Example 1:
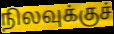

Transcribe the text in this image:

நிலவுக்குச்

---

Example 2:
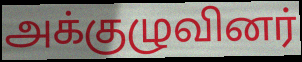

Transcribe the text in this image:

அக்குழுவினர்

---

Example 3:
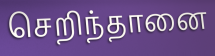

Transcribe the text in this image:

செறிந்தானை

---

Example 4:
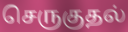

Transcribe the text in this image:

செருகுதல்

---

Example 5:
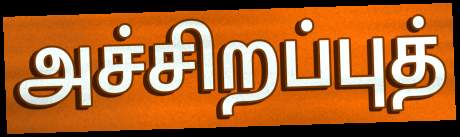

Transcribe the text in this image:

அச்சிறப்புத்